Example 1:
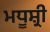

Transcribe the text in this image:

ਮਧੂਸ਼੍ਰੀ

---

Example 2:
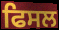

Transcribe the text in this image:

ਫਿਸਲ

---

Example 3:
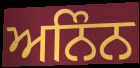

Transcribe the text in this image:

ਅਨਿੰਨ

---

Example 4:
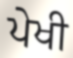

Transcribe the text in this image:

ਪੇਖੀ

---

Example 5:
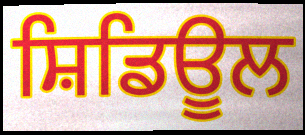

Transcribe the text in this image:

ਸ਼ਿਡਿਊਲ